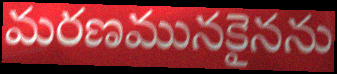
మరణమునకైనను